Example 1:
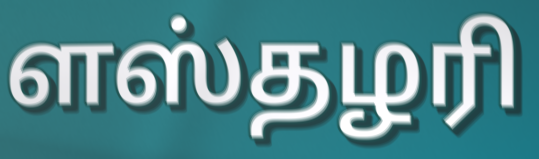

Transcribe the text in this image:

ளஸ்தழரி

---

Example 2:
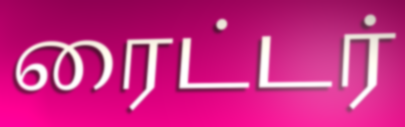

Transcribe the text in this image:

ரைட்டர்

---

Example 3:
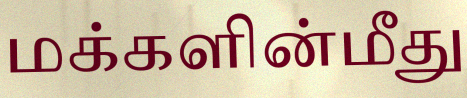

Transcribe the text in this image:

மக்களின்மீது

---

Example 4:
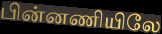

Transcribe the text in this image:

பின்னணியிலே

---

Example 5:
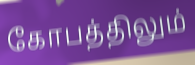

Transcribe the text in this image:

கோபத்திலும்